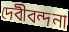
দেবীবন্দনা